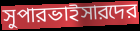
সুপারভাইসারদের